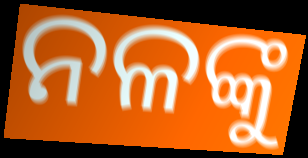
ନଳଙ୍କୁ